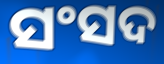
ସଂସଦ